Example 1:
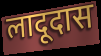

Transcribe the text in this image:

लादूदास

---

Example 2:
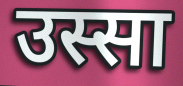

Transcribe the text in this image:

उस्सा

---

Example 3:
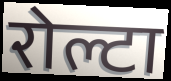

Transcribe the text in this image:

रोल्टा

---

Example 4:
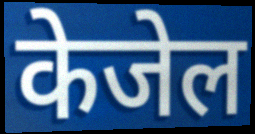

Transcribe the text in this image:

केजेल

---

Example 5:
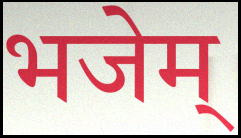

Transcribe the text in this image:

भजेम्